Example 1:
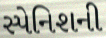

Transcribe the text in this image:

સ્પેનિશની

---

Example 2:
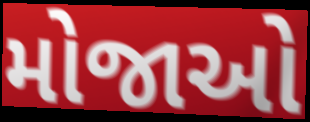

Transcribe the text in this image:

મોજાઓ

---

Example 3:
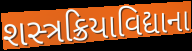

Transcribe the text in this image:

શસ્ત્રક્રિયાવિદ્યાના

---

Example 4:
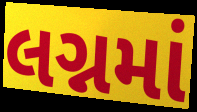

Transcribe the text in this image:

લગ્નમાં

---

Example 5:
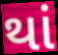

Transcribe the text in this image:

થાં